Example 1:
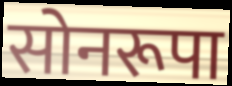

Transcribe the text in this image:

सोनरूपा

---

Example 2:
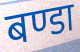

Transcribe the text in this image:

बण्डा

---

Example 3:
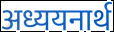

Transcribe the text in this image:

अध्ययनार्थ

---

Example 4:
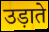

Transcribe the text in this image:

उड़ाते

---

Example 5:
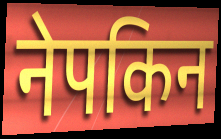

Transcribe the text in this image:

नेपकिन